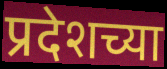
प्रदेशच्या